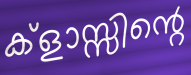
ക്ളാസ്സിന്റെ